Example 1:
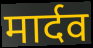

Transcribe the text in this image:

मार्दव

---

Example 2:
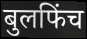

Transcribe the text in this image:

बुलफिंच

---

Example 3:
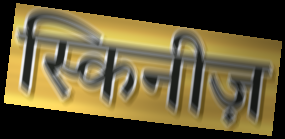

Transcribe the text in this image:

स्किनीज़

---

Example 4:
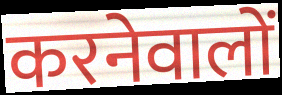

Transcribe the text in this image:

करनेवालों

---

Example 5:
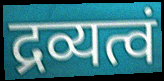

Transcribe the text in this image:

द्रव्यत्वं